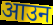
आउन